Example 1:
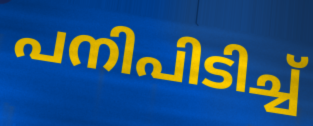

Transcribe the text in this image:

പനിപിടിച്ച്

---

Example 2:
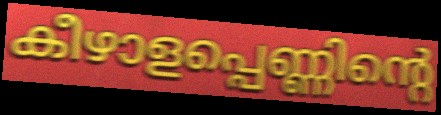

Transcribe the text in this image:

കീഴാളപ്പെണ്ണിന്റെ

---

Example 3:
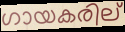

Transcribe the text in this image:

ഗായകരില്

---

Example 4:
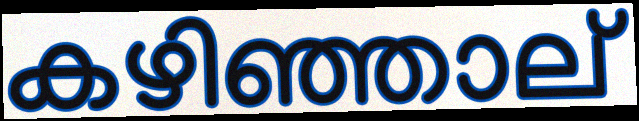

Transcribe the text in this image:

കഴിഞ്ഞാല്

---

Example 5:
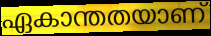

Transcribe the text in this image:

ഏകാന്തതയാണ്